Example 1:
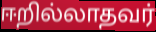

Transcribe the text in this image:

ஈறில்லாதவர்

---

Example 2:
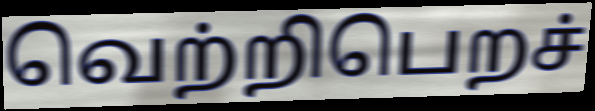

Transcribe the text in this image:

வெற்றிபெறச்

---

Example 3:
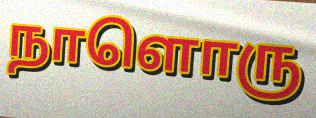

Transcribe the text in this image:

நாளொரு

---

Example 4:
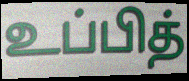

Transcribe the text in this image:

உப்பித்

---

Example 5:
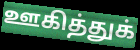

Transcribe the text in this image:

ஊகித்துக்